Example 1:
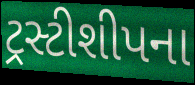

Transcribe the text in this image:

ટ્રસ્ટીશીપના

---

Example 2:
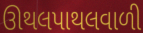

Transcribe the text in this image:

ઊથલપાથલવાળી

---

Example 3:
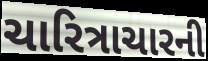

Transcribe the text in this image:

ચારિત્રાચારની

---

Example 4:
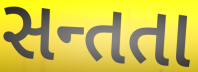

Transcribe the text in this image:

સન્તતા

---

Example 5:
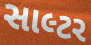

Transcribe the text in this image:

સાલ્ટર